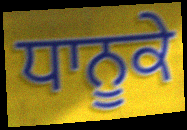
ਧਾਨੂਕੇ